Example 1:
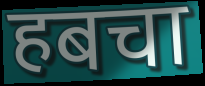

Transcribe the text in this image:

हबचा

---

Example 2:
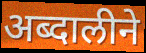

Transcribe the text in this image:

अब्दालीने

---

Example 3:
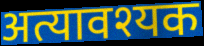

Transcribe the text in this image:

अत्यावश्यक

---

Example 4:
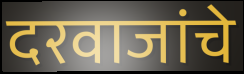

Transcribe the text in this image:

दरवाजांचे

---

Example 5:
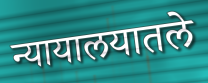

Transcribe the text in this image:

न्यायालयातले